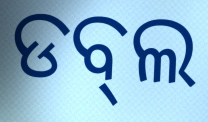
ଡବ୍‌ଲ